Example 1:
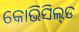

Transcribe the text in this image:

କୋଭିସିଲ୍‌ଡ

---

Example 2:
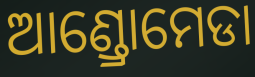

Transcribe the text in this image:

ଆଣ୍ଡ୍ରୋମେଡା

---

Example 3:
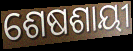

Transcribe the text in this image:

ଶେଷଶାୟୀ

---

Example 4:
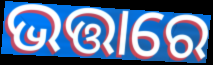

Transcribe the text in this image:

ଭତ୍ତାରେ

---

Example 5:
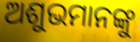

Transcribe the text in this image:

ଅଶୁଭମାନଙ୍କୁ